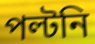
পল্টনি